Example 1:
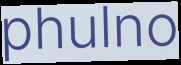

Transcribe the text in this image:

phulno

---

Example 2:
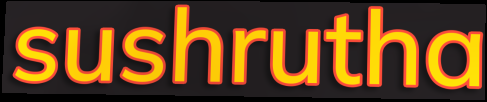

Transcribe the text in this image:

sushrutha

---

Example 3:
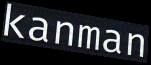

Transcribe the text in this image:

kanman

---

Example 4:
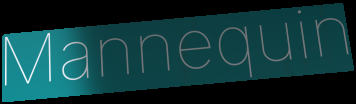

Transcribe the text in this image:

Mannequin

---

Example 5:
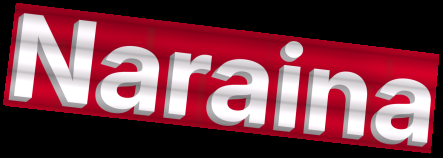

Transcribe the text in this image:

Naraina